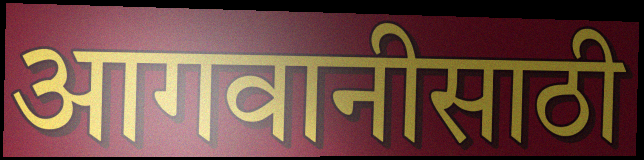
आगवानीसाठी